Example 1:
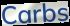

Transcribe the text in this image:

Carbs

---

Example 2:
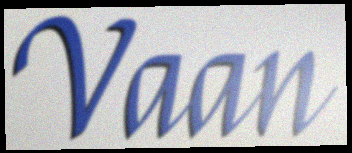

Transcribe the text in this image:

Vaan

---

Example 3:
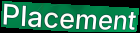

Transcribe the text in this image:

Placement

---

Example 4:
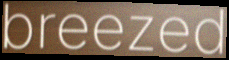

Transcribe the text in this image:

breezed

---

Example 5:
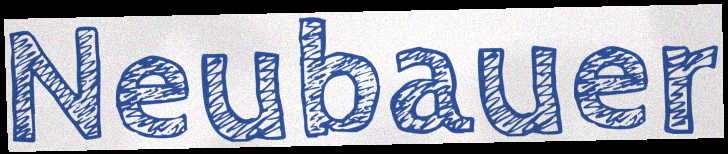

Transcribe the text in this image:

Neubauer